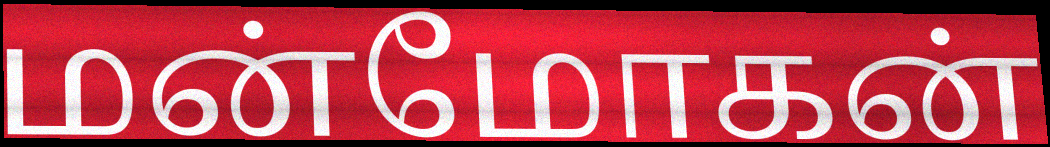
மன்மோகன்